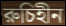
রুচিহীন